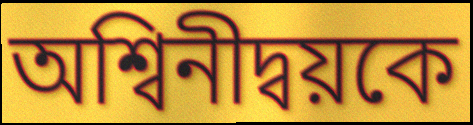
অশ্বিনীদ্বয়কে